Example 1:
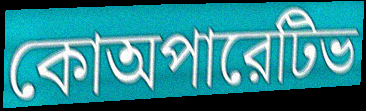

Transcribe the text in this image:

কোঅপারেটিভ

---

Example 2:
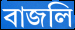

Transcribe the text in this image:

বাজলি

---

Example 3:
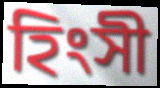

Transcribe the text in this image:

হিংসী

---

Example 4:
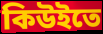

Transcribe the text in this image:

কিউইতে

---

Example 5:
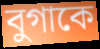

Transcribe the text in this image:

বুগাকে